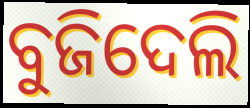
ବୁଜିଦେଲି